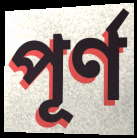
পূর্ণ